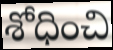
శోధించి